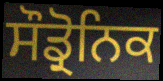
ਸੌਡ੍ਰੋਨਿਕ